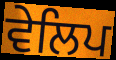
ਵੇਲਿਪ